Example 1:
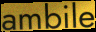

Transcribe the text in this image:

ambile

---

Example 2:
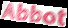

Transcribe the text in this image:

Abbot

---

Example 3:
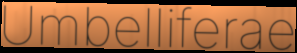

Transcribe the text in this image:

Umbelliferae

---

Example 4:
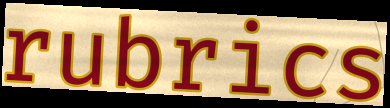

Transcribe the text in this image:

rubrics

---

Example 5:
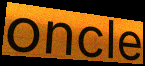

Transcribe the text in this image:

oncle